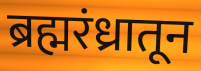
ब्रह्मरंध्रातून